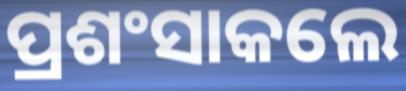
ପ୍ରଶଂସାକଲେ